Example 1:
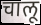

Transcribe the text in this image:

चालू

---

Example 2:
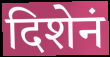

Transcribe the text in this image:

दिशेनं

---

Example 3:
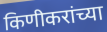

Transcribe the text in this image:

किणीकरांच्या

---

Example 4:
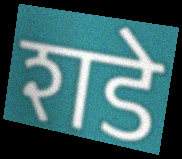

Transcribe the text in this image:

शडे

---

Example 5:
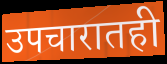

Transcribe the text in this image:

उपचारातही